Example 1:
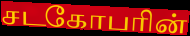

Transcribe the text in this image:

சடகோபரின்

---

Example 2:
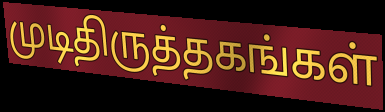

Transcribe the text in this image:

முடிதிருத்தகங்கள்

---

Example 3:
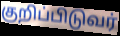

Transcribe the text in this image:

குறிப்பிடுவர்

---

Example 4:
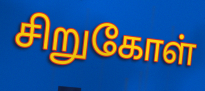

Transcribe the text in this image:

சிறுகோள்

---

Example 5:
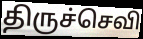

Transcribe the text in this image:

திருச்செவி